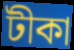
টীকা